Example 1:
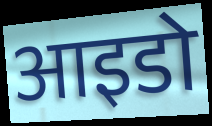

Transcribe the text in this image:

आइडो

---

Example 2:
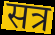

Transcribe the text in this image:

सत्र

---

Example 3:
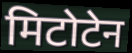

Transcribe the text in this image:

मिटोटेन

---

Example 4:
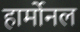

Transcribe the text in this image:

हार्मोनल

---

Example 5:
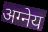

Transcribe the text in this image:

अग्नेय